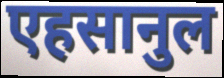
एहसानुल